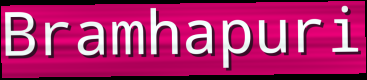
Bramhapuri